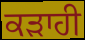
ਕੜਾਹੀ